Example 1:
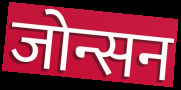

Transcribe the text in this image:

जोन्सन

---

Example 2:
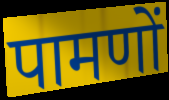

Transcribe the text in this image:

पामणों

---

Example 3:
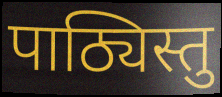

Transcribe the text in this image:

पाठ्यिस्तु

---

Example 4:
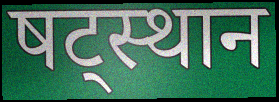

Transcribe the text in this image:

षट्स्थान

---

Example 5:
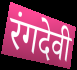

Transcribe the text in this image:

रंगदेवी